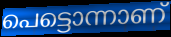
പെട്ടൊന്നാണ്